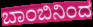
ಬಾಂಬಿನಿಂದ